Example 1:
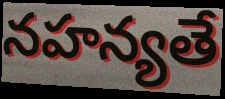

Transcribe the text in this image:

నహన్యతే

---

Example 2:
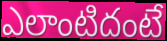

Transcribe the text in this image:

ఎలాంటిదంటే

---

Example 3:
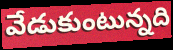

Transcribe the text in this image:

వేడుకుంటున్నది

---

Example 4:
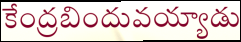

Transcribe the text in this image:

కేంద్రబిందువయ్యాడు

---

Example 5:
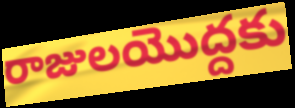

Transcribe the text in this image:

రాజులయొద్దకు